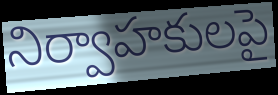
నిర్వాహకులపై